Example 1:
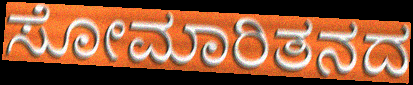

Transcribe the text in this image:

ಸೋಮಾರಿತನದ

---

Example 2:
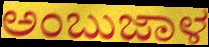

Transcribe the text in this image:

ಅಂಬುಜಾಳ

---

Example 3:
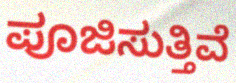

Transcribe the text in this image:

ಪೂಜಿಸುತ್ತಿವೆ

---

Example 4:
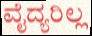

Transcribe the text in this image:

ವೈದ್ಯರಿಲ್ಲ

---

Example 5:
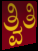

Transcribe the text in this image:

ತ್ವಿತಿ